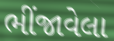
ભીંજાવેલા